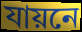
যায়নে